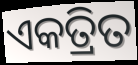
ଏକତ୍ରିତ